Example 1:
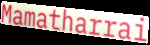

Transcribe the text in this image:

Mamatharrai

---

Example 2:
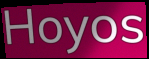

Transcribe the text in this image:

Hoyos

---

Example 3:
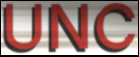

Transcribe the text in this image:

UNC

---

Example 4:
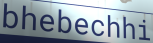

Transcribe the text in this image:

bhebechhi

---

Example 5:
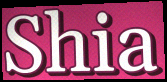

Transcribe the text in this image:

Shia